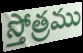
స్తోత్రము